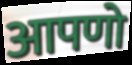
आपणो